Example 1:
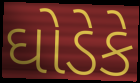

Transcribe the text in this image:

ઘોડેકે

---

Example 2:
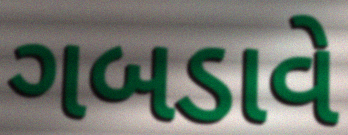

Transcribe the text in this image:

ગબડાવે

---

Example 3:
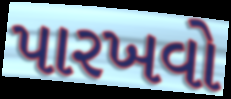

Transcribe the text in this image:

પારખવો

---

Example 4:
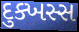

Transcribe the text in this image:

દુક્ખસ્સ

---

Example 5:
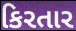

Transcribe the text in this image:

કિરતાર